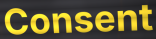
Consent